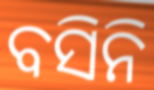
ବସିନି